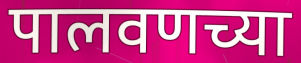
पालवणच्या